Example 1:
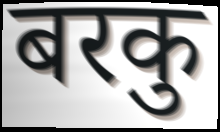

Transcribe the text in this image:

बरकु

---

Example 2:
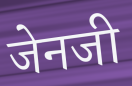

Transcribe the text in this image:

जेनजी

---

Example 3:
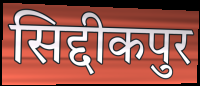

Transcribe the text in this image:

सिद्दीकपुर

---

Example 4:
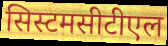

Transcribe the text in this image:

सिस्टमसीटीएल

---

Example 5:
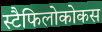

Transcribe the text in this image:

स्टैफिलोकोकस